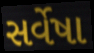
સર્વેષા